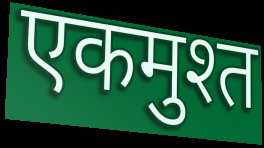
एकमुश्त